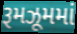
રૂમઝૂમમાં